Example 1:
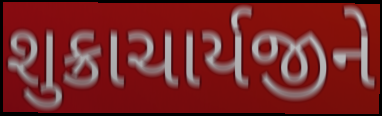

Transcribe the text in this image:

શુક્રાચાર્યજીને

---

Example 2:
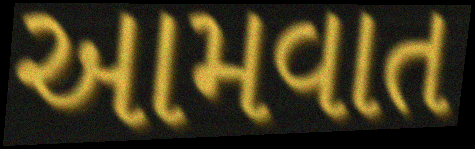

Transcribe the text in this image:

આમવાત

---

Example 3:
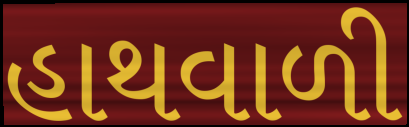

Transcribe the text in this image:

હાથવાળી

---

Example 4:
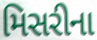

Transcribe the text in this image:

મિસરીના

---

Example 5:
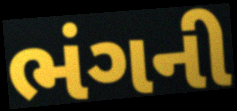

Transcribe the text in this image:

ભંગની